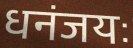
धनंजयः